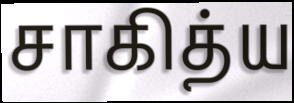
சாகித்ய